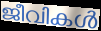
ജീവികൾ